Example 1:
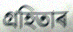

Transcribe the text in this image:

গ্ৰহিতাৰ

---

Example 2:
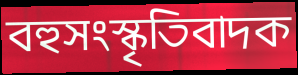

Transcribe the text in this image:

বহুসংস্কৃতিবাদক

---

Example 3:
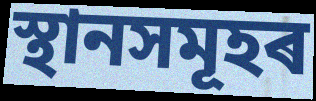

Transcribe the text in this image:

স্থানসমূহৰ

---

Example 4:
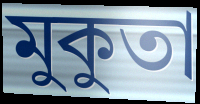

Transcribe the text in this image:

মুকুতা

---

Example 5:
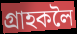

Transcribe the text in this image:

গ্ৰাহকলৈ